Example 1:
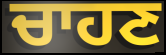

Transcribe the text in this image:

ਚਾਹਣ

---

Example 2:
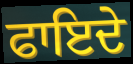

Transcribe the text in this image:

ਫਾਇਦੇ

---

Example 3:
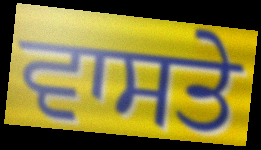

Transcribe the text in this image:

ਵਾਸਤੇ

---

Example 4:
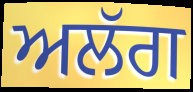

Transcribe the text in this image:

ਅਲੱਗ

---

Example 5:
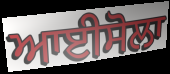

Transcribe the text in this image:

ਆਈਸੋਲਾ